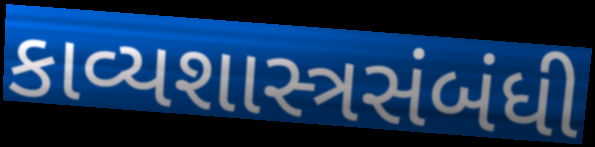
કાવ્યશાસ્ત્રસંબંધી